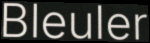
Bleuler